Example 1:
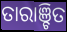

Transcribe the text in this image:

ତାରାଞ୍ଚିତ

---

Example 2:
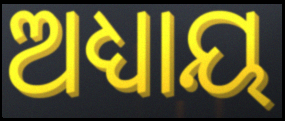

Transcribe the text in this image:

ଅଧ୍ୟାୟ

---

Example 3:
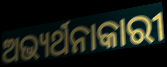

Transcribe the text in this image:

ଅଭ୍ୟର୍ଥନାକାରୀ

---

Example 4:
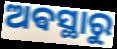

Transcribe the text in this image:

ଅଵସ୍ଥାରୁ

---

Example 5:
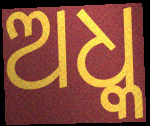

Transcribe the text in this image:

ଅଧ୍କ